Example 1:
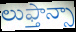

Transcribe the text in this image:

లుఫ్తాన్సా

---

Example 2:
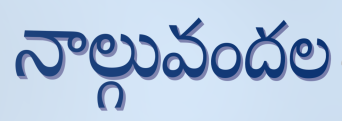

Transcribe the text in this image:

నాల్గువందల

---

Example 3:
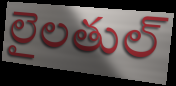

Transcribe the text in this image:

లైలతుల్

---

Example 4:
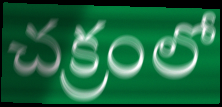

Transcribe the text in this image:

చక్రంలో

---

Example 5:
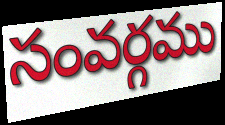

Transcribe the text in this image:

సంవర్గము